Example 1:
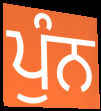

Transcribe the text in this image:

ਪੁੰਨ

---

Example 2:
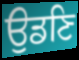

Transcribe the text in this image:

ਉਡਣਿ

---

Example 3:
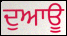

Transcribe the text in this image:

ਦੁਆਊ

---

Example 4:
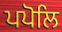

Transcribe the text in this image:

ਪਪੋਲਿ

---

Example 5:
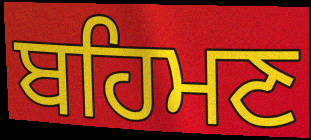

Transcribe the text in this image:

ਬਹਿਮਣ